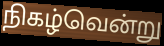
நிகழ்வென்று